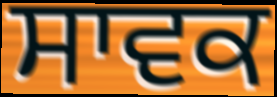
ਸਾਵਕ